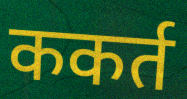
ककर्त